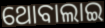
ଥୋବାଲାଇ